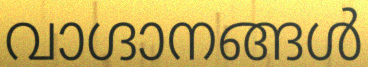
വാഗ്ദാനങ്ങൾ